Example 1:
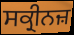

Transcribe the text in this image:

ਸਕ੍ਰੀਨਜ਼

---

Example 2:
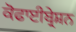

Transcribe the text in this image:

ਕੋਫਾਈਬ੍ਰੇਸ਼ਨ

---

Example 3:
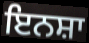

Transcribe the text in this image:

ਇਨਸ਼ਾ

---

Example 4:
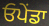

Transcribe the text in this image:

ਓਪੇਂਡਾ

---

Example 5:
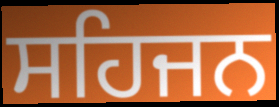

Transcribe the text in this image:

ਸਹਿਜਨ